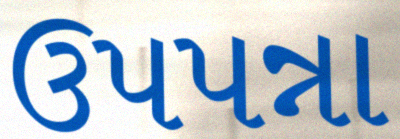
ઉપપન્ના